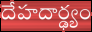
దేహదార్ఢ్యం